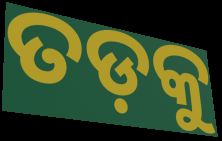
ତଡ଼କୁ